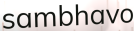
sambhavo